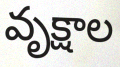
వృక్షాల